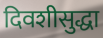
दिवशीसुद्धा